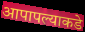
आपापल्याकडे